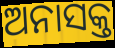
ଅନାସକ୍ତ